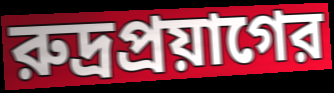
রুদ্রপ্রয়াগের